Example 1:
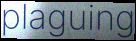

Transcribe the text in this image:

plaguing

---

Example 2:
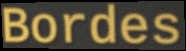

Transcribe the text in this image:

Bordes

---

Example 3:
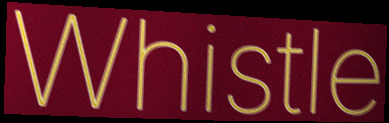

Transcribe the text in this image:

Whistle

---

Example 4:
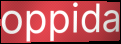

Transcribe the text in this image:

oppida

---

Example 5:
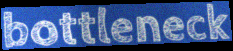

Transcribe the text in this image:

bottleneck